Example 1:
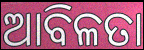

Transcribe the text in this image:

ଆବିଳତା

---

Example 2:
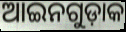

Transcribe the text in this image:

ଆଇନଗୁଡ଼ାକ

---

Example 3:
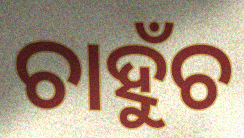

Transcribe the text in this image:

ଚାହୁଁଚ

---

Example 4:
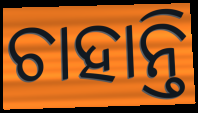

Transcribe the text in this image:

ଚାହାନ୍ତି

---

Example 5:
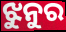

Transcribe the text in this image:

ଝୁନୁର